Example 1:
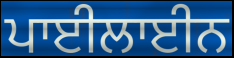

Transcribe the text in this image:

ਪਾਈਲਾਈਨ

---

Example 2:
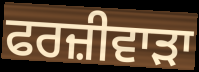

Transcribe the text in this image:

ਫਰਜ਼ੀਵਾਡ਼ਾ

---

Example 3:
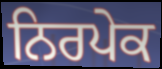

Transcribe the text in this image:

ਨਿਰਪੇਕ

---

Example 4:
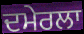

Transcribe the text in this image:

ਦਮੇਰਲਾ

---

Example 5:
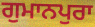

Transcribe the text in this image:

ਗੁਮਾਨਪੁਰਾ